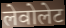
लेवोलेट